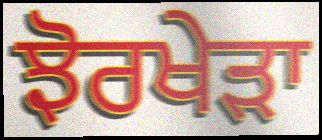
ਝੋਰਖੇੜਾ